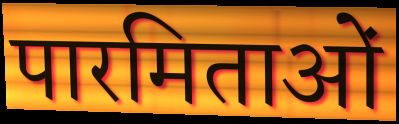
पारमिताओं